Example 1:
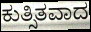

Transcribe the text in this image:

ಕುತ್ಸಿತವಾದ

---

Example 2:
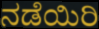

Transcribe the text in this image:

ನಡೆಯಿರಿ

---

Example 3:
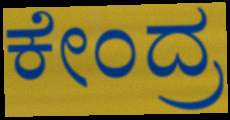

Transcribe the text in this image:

ಕೇಂದ್ರ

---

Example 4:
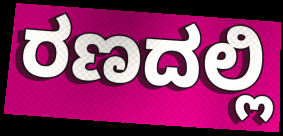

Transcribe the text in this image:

ರಣದಲ್ಲಿ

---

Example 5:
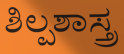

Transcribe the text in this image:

ಶಿಲ್ಪಶಾಸ್ತ್ರ